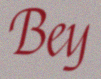
Bey